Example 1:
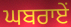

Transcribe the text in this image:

ਘਬਰਾਏਂ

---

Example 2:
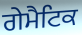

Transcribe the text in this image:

ਗੇਮੈਟਿਕ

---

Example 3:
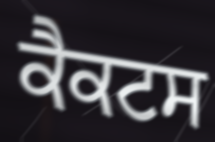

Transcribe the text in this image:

ਕੈਕਟਸ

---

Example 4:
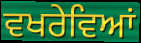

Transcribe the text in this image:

ਵਖਰੇਵਿਆਂ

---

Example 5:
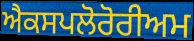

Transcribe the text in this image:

ਐਕਸਪਲੋਰੋਰੀਅਮ